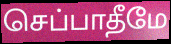
செப்பாதீமே